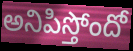
అనిపిస్తోందో